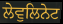
ਲੇਵੁਲਿਨੇਟ